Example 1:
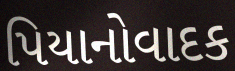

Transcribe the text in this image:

પિયાનોવાદક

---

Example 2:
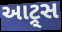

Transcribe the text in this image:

આટ્ર્સ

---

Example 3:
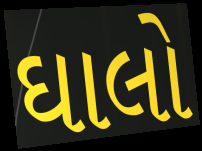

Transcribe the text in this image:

ઘાલો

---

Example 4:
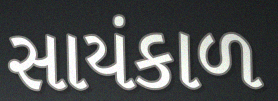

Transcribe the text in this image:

સાયંકાળ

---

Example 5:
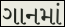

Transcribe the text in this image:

ગાનમાં